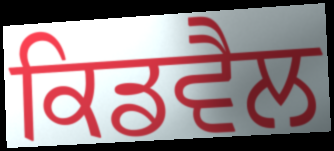
ਕਿਡਵੈਲ